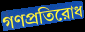
গণপ্রতিরোধ